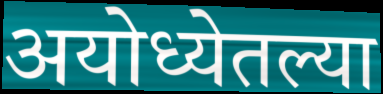
अयोध्येतल्या